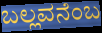
ಬಲ್ಲವನೆಂಬ